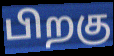
பிறகு